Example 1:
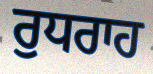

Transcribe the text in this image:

ਰੁਧਰਾਹ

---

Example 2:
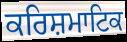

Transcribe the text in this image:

ਕਰਿਸ਼ਮਾਟਿਕ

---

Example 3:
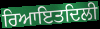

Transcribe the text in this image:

ਰਿਆਇਤਦਿਲੀ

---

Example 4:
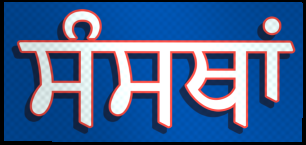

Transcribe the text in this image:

ਸੰਸਥਾਂ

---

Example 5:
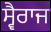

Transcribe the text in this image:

ਸ੍ਵੈਰਾਜ